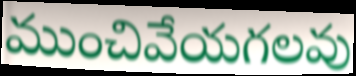
ముంచివేయగలవు